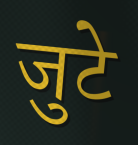
जुटे